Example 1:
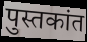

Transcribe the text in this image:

पुस्तकांत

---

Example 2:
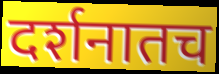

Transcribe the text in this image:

दर्शनातच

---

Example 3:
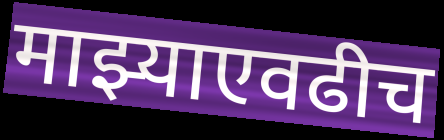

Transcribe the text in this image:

माझ्याएवढीच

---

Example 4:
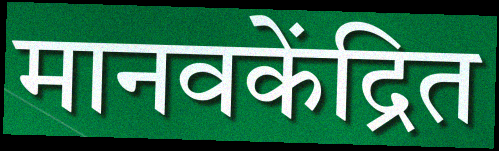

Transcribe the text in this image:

मानवकेंद्रित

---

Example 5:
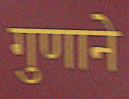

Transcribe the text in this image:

गुणाने